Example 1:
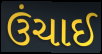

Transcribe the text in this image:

ઉંચાઈ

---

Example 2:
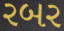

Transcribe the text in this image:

રબર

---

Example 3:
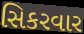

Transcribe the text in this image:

સિકરવાર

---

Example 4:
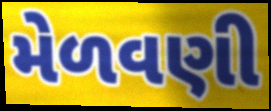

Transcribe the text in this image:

મેળવણી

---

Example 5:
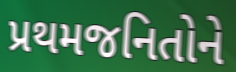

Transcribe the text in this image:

પ્રથમજનિતોને